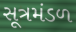
સૂત્રમંડળ